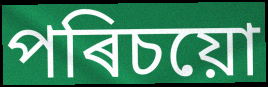
পৰিচয়ো